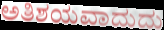
ಅತಿಶಯವಾದುದು